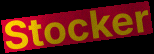
Stocker